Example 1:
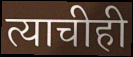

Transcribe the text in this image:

त्याचीही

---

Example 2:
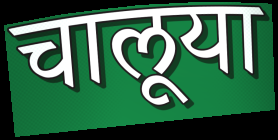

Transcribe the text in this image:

चालूया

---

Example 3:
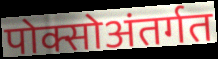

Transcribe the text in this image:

पोक्सोअंतर्गत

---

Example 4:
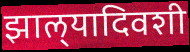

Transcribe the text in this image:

झाल्यादिवशी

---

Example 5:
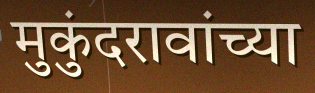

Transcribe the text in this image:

मुकुंदरावांच्या